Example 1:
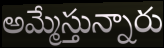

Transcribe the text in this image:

అమ్మేస్తున్నారు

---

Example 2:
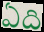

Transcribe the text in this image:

ఏది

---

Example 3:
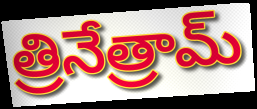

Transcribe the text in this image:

త్రినేత్రామ్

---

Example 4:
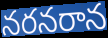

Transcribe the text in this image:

నరనరాన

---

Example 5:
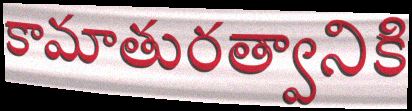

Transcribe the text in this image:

కామాతురత్వానికి